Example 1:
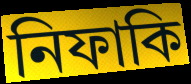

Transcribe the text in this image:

নিফাকি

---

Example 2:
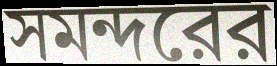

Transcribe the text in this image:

সমন্দরের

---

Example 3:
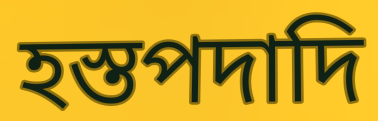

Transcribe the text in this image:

হস্তপদাদি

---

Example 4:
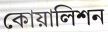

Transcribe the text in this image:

কোয়ালিশন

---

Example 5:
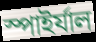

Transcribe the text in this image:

স্পাইর্যাল